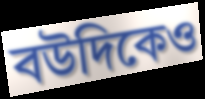
বউদিকেও